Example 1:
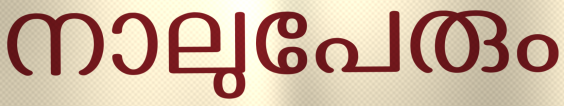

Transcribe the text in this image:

നാലുപേരും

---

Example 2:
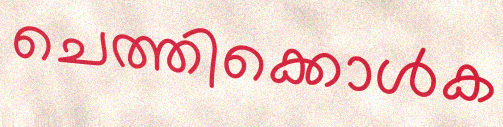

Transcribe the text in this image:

ചെത്തിക്കൊൾക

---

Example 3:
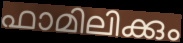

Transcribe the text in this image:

ഫാമിലിക്കും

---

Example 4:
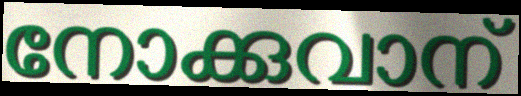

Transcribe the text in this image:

നോക്കുവാന്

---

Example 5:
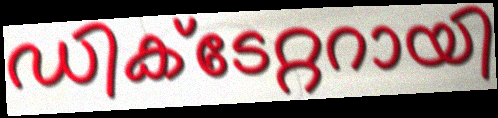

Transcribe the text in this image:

ഡിക്ടേറ്ററായി